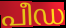
പീഡ